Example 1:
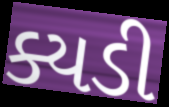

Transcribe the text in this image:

ક્યડી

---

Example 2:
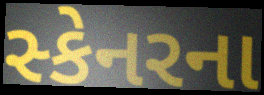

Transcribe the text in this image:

સ્કેનરના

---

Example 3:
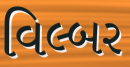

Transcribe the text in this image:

વિલ્બર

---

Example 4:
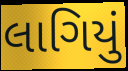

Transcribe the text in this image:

લાગિયું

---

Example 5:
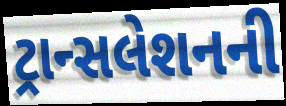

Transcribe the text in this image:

ટ્રાન્સલેશનની